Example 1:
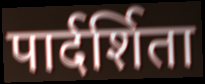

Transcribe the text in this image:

पार्दर्शिता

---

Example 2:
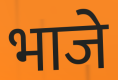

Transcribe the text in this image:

भाजे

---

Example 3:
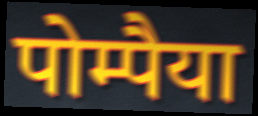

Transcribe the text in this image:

पोम्पैया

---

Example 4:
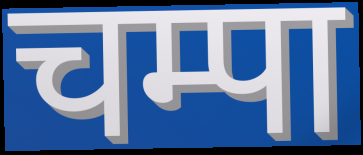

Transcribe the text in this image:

चम्पा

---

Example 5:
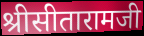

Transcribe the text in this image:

श्रीसीतारामजी